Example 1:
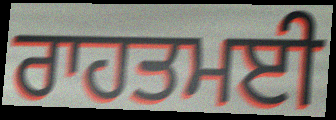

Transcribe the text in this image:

ਰਾਹਤਮਈ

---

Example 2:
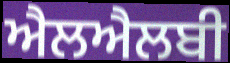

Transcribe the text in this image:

ਐਲਐਲਬੀ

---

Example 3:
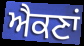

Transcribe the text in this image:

ਐਕਣਾਂ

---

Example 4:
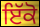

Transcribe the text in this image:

ਇੱਕੋ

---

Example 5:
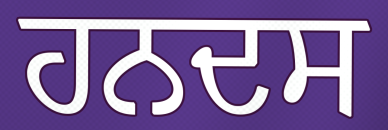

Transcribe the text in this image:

ਹਨਦਸ